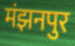
मंझनपुर